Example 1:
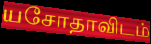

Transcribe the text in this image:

யசோதாவிடம்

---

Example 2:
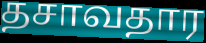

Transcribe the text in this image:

தசாவதார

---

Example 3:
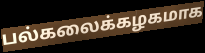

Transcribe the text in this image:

பல்கலைக்கழகமாக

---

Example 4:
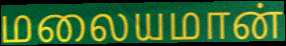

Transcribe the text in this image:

மலையமான்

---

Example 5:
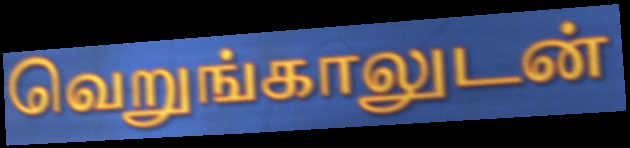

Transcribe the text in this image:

வெறுங்காலுடன்